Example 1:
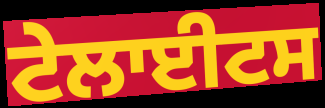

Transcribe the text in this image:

ਟੇਲਾਈਟਸ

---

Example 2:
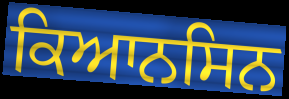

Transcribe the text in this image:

ਕਿਆਨਸਿਨ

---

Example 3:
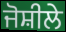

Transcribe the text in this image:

ਜੋਸ਼ੀਲੇ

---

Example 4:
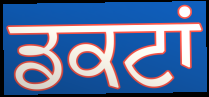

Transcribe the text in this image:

ਡਕਟਾਂ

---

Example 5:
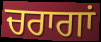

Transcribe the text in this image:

ਚਰਾਗਾਂ